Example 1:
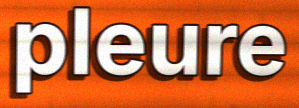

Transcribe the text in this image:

pleure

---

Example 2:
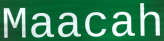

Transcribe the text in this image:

Maacah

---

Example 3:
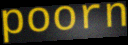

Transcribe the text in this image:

poorn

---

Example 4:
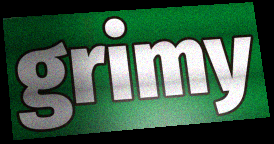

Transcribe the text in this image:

grimy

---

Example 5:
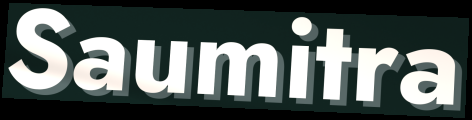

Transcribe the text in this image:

Saumitra